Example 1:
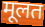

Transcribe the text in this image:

मूलत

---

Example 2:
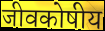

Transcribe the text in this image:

जीवकोषीय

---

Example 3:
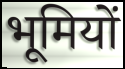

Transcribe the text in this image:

भूमियों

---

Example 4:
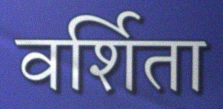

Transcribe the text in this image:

वर्शिता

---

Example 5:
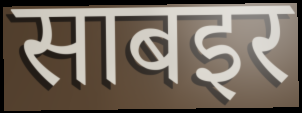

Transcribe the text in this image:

साबइर